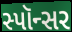
સ્પૉન્સર